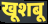
खूशबू